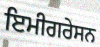
ਇਮੀਗਰੇਸਨ